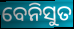
ବେନିସୁତ